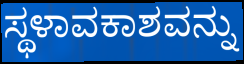
ಸ್ಥಳಾವಕಾಶವನ್ನು